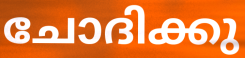
ചോദിക്കു